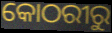
କୋଠରୀରୁ